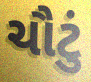
ચૌટું